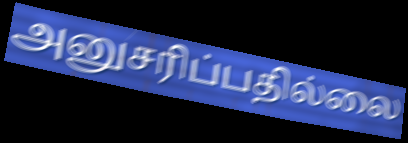
அனுசரிப்பதில்லை